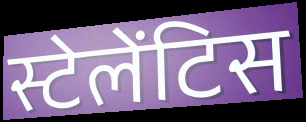
स्टेलेंटिस